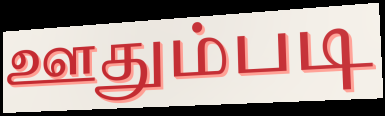
ஊதும்படி